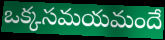
ఒక్కసమయమందే